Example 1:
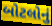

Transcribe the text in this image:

બોટલોનું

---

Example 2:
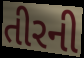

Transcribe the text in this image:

તીરની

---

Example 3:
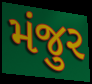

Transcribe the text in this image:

મંજુર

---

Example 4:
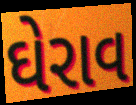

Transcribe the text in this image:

ઘેરાવ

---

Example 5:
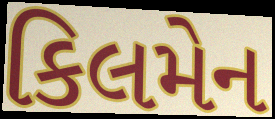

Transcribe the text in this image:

કિલમેન